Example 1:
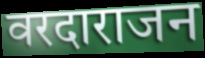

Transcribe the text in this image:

वरदाराजन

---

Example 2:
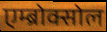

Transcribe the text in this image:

एम्ब्रोक्सोल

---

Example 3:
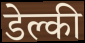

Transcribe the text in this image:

डेल्की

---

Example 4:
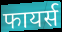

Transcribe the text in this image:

फायर्स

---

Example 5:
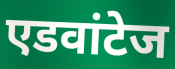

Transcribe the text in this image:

एडवांटेज